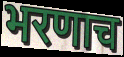
भरणाच